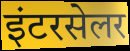
इंटरसेलर